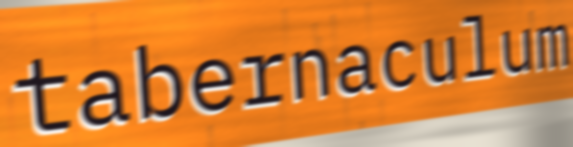
tabernaculum